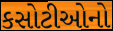
કસોટીઓનો